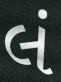
લં